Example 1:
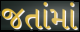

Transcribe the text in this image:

જતાંમાં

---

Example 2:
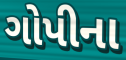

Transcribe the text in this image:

ગોપીના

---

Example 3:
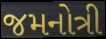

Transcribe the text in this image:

જમનોત્રી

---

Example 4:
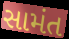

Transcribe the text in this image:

સામંત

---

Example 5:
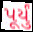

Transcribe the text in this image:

પૂર્યું